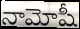
నామోషీ